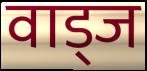
वाड्ज